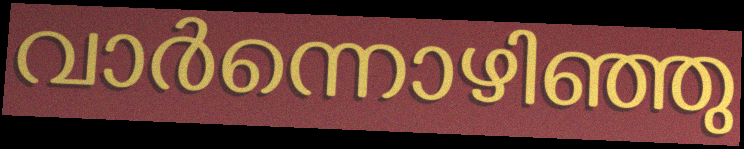
വാർന്നൊഴിഞ്ഞു